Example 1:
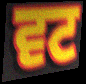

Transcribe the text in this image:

ਵਟ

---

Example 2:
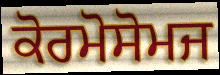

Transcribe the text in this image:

ਕੋਰਮੋਸੋਮਜ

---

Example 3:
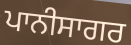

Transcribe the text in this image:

ਪਾਨੀਸਾਗਰ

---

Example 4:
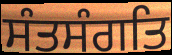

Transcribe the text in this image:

ਸੰਤਸੰਗਤਿ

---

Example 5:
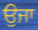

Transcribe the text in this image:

ਉਜਾ